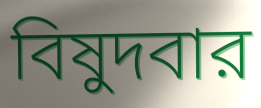
বিষুদবার